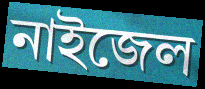
নাইজেল